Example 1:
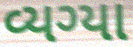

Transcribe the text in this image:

વ્યગ્યા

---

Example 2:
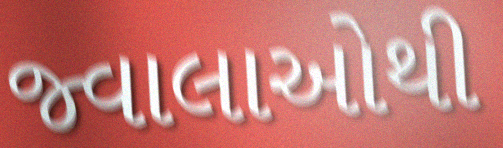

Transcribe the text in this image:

જ્વાલાઓથી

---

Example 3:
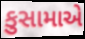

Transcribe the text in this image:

કુસામાએ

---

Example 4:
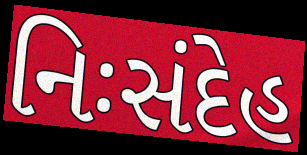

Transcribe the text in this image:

નિઃસંદેહ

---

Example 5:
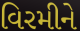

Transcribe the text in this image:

વિરમીને